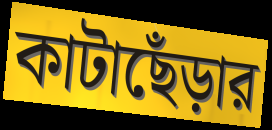
কাটাছেঁড়ার